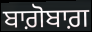
ਬਾਗ਼ੋਬਾਗ਼